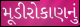
મૂડીરોકાણનું